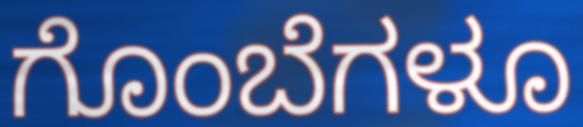
ಗೊಂಬೆಗಳೂ